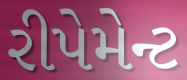
રીપેમેન્ટ